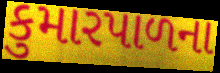
કુમારપાળના